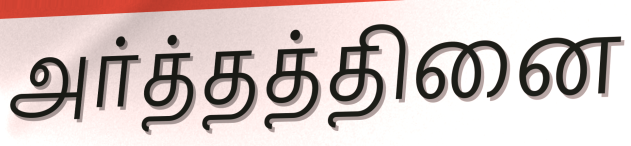
அர்த்தத்தினை